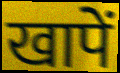
खापें